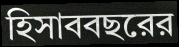
হিসাববছরের